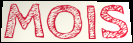
MOIS